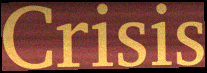
Crisis